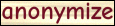
anonymize